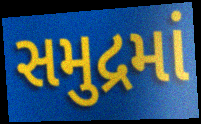
સમુદ્રમાં